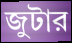
জুটার